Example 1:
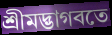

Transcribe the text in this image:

শ্রীমদ্ভাগবতে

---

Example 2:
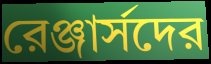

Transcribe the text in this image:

রেঞ্জার্সদের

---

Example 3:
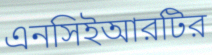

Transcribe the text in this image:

এনসিইআরটির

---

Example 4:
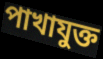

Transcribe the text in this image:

পাখাযুক্ত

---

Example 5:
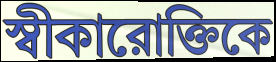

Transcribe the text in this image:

স্বীকারোক্তিকে